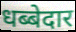
धब्बेदार